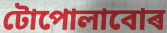
টোপোলাবোৰ